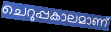
ചെറുപ്പകാലമാണ്